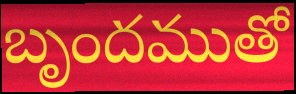
బృందముతో